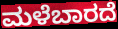
ಮಳೆಬಾರದೆ